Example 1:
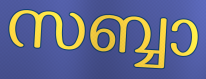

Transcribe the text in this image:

സബ്ബാ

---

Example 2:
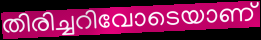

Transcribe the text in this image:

തിരിച്ചറിവോടെയാണ്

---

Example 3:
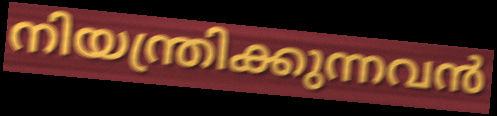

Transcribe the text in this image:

നിയന്ത്രിക്കുന്നവൻ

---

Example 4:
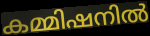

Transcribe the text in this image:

കമ്മിഷനിൽ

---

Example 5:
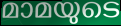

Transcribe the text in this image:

മാമയുടെ